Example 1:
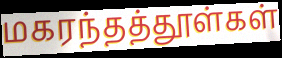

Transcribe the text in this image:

மகரந்தத்தூள்கள்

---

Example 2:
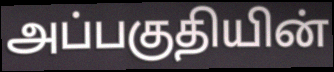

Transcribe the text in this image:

அப்பகுதியின்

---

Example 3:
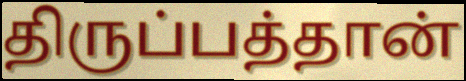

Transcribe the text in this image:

திருப்பத்தான்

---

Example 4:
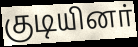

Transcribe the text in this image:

குடியினர்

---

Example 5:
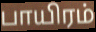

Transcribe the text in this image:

பாயிரம்